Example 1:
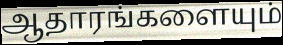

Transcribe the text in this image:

ஆதாரங்களையும்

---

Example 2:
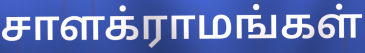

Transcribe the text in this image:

சாளக்ராமங்கள்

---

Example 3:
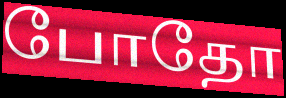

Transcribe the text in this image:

போதோ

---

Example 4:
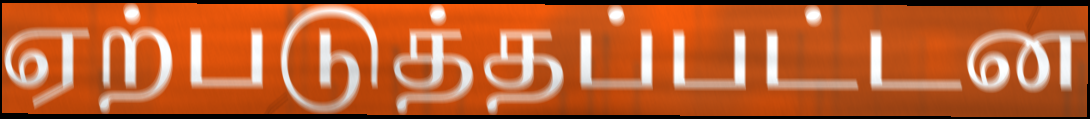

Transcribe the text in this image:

ஏற்படுத்தப்பட்டன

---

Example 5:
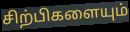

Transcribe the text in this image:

சிற்பிகளையும்